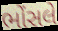
ભોંસલે